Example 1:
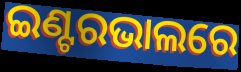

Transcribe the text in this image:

ଇଣ୍ଟରଭାଲରେ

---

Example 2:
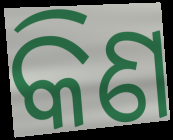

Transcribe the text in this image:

କିଣ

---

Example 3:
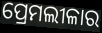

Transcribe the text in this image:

ପ୍ରେମଲୀଳାର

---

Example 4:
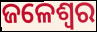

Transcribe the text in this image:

ଜଳେଶ୍ବର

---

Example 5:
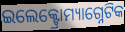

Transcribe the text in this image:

ଇଲେକ୍ଟ୍ରୋମ୍ୟାଗ୍ନେଟିକ